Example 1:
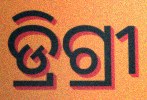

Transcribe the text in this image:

ଡ୍ରିଗ୍ରୀ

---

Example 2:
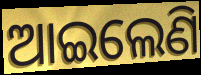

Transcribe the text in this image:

ଆଇଲେଣି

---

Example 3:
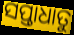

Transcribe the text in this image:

ସପ୍ତାଧାତୁ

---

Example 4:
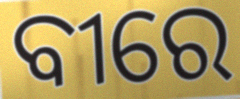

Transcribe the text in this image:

ବୀରେ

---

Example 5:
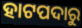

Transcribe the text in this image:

ହାଟପଦାରୁ